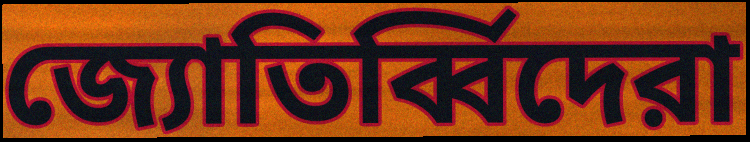
জ্যোতির্ব্বিদেরা